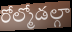
రోల్మోడల్గా